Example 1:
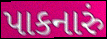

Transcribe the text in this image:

પાકનારું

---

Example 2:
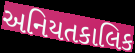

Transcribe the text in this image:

અનિયતકાલિક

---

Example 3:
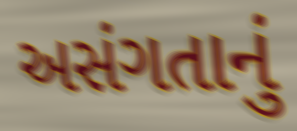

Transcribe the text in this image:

અસંગતાનું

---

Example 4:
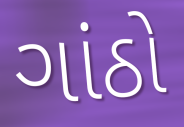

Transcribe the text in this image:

ગાંઠો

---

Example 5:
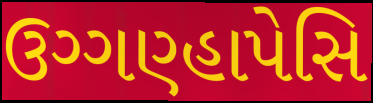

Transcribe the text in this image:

ઉગ્ગણ્હાપેસિ